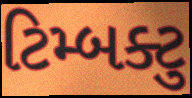
ટિમ્બક્ટુ